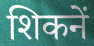
शिकनें